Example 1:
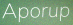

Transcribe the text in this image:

Aporup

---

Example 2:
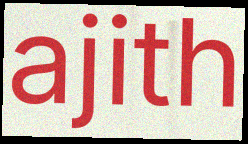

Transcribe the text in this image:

ajith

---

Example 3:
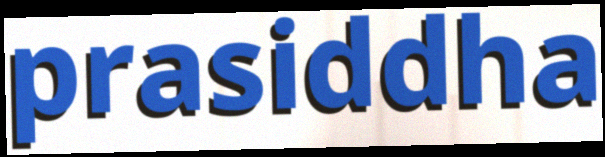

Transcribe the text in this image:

prasiddha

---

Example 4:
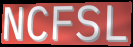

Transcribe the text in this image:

NCFSL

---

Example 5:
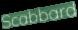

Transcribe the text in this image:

Scabbard